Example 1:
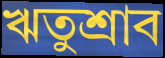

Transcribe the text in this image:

ঋতুশ্রাব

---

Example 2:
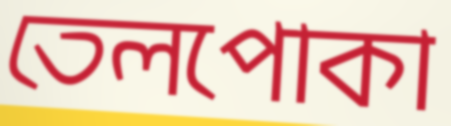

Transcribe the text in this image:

তেলপোকা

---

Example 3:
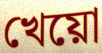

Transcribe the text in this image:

খেয়ো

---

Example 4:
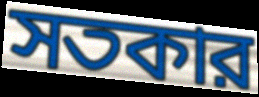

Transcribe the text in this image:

সতকার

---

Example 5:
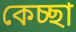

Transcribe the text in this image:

কেচ্ছা